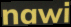
nawi